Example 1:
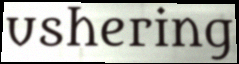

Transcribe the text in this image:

ushering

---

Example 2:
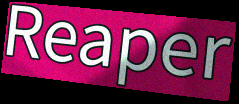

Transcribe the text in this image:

Reaper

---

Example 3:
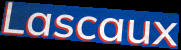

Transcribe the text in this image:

Lascaux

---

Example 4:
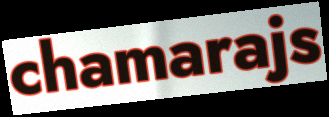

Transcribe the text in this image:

chamarajs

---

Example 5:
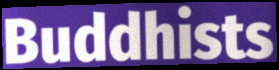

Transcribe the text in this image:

Buddhists